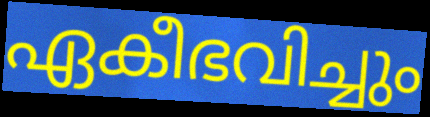
ഏകീഭവിച്ചും